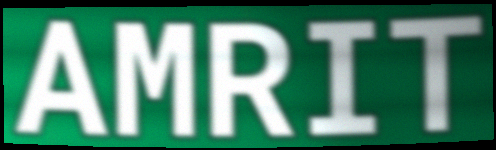
AMRIT